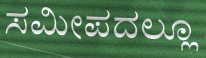
ಸಮೀಪದಲ್ಲೂ